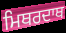
ਮਿਥਰਦਾਥ